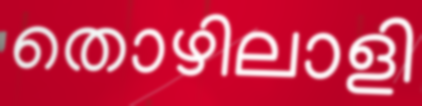
തൊഴിലാളി